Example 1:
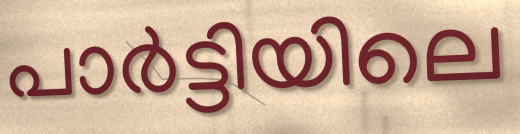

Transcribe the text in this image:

പാർട്ടിയിലെ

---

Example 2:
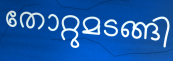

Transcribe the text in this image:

തോറ്റുമടങ്ങി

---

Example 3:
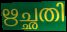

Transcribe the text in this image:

ഋച്ഛതി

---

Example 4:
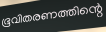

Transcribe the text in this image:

ഭൂവിതരണത്തിന്റെ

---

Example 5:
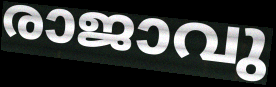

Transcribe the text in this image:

രാജാവു